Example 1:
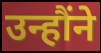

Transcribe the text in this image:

उन्हौंने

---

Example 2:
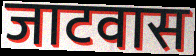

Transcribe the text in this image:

जाटवास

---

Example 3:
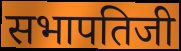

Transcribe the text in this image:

सभापतिजी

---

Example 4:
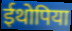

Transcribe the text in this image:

ईथोपिया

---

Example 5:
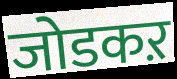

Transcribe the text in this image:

जोडकऱ